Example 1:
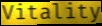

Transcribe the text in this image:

Vitality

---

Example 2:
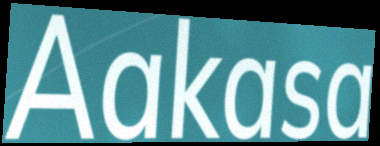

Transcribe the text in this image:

Aakasa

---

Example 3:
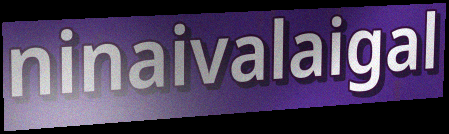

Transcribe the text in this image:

ninaivalaigal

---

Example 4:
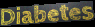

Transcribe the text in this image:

Diabetes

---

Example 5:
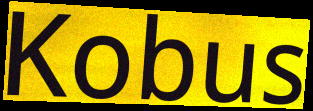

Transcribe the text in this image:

Kobus